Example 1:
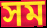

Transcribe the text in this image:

সম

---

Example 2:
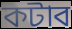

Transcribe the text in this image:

কটাব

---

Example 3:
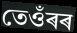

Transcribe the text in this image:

তেওঁৰৰ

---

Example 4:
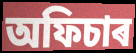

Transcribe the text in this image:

অফিচাৰ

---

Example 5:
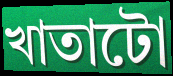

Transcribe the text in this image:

খাতাটো